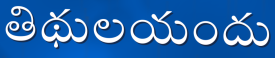
తిథులయందు